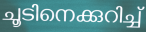
ചൂടിനെക്കുറിച്ച്